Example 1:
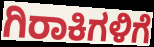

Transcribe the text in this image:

ಗಿರಾಕಿಗಳಿಗೆ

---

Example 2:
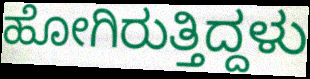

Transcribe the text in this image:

ಹೋಗಿರುತ್ತಿದ್ದಳು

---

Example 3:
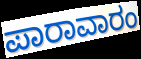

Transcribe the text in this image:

ಪಾರಾವಾರಂ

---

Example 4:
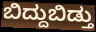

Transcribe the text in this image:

ಬಿದ್ದುಬಿಡ್ತು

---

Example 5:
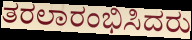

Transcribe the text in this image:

ತರಲಾರಂಭಿಸಿದರು